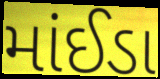
માંઈડા